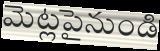
మెట్లపైనుండి